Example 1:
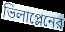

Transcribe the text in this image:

ভিলাপ্লেনের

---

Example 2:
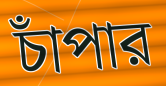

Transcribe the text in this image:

চাঁপার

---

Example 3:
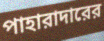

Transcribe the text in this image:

পাহারাদারের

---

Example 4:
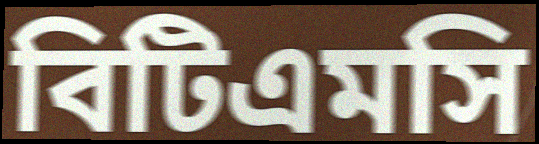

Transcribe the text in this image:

বিটিএমসি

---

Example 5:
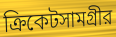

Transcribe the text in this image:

ক্রিকেটসামগ্রীর